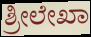
ಶ್ರೀಲೇಖಾ